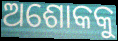
ଅଶୋକକୁ